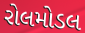
રોલમોડલ